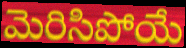
మెరిసిపోయే